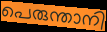
പെരുന്താനി